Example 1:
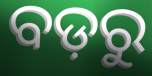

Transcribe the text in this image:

ବଡ଼ରୁ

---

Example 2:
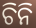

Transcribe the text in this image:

ଚିନି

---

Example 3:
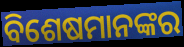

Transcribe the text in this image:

ବିଶେଷମାନଙ୍କର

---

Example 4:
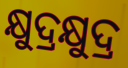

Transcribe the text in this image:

କ୍ଷୁଦ୍ରକ୍ଷୁଦ୍ର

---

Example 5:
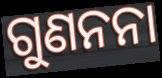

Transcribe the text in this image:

ଗୁଣନନା